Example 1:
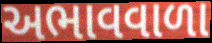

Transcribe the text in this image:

અભાવવાળા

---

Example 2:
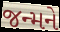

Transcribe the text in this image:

જન્મને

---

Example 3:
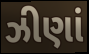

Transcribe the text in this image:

ઝીણાં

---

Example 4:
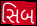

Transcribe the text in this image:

સિબ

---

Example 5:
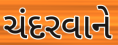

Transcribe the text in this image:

ચંદરવાને